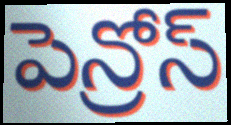
పెన్రోస్